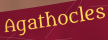
Agathocles